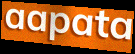
aapata